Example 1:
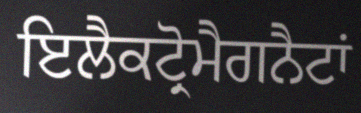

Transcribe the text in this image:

ਇਲੈਕਟ੍ਰੋਮੈਗਨੈਟਾਂ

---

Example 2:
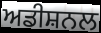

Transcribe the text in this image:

ਅਡੀਸ਼ਨਲ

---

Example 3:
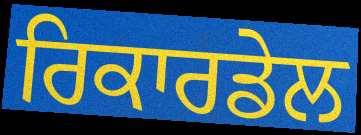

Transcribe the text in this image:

ਰਿਕਾਰਡੇਲ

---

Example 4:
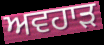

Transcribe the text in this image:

ਅਵਹਾੜ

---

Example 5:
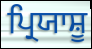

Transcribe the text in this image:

ਪ੍ਰਿਯਾਸ਼ੂ